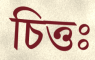
চিত্তঃ